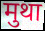
मुथा